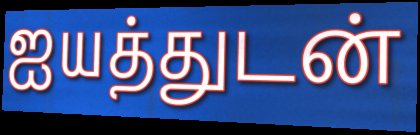
ஐயத்துடன்